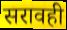
सरावही